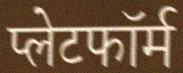
प्लेटफॉर्म